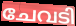
ചേവടി